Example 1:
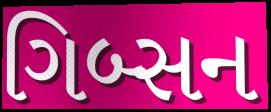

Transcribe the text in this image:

ગિબ્સન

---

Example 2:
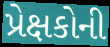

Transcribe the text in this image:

પ્રેક્ષકોની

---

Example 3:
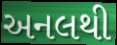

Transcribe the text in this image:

અનલથી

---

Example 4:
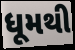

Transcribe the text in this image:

ધૂમથી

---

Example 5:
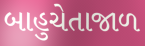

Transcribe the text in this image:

બાહુચેતાજાળ